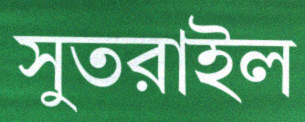
সুতরাইল